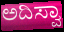
ಅದಿಸ್ವಾ